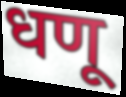
धणू